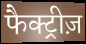
फैक्ट्रीज़